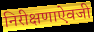
निरीक्षणाऐवजी